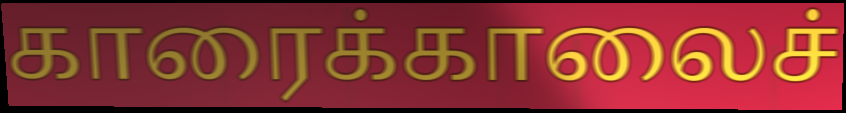
காரைக்காலைச்